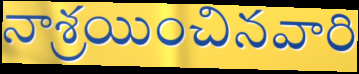
నాశ్రయించినవారి